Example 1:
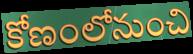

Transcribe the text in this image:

కోణంలోనుంచి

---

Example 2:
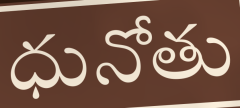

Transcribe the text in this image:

ధునోతు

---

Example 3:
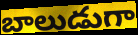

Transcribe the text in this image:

బాలుడుగా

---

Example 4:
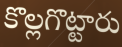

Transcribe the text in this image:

కొల్లగొట్టారు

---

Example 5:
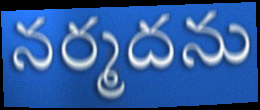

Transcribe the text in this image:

నర్మదను